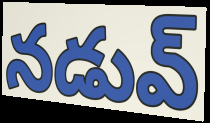
నడువ్